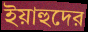
ইয়াহুদের